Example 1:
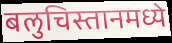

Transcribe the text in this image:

बलुचिस्तानमध्ये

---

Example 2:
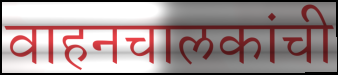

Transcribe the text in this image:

वाहनचालकांची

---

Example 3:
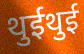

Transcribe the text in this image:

थुईथुई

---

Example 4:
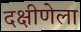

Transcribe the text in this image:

दक्षीणेला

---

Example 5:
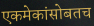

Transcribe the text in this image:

एकमेकांसोबतच